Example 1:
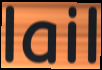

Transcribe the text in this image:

lail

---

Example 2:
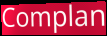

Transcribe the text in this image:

Complan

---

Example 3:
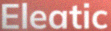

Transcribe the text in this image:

Eleatic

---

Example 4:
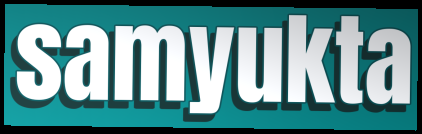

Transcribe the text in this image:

samyukta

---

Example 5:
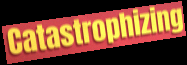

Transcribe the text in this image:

Catastrophizing